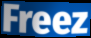
Freez